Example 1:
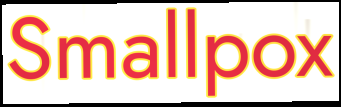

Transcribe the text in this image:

Smallpox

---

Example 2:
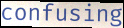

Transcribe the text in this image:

confusing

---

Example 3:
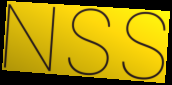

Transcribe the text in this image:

NSS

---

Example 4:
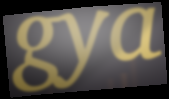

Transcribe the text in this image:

gya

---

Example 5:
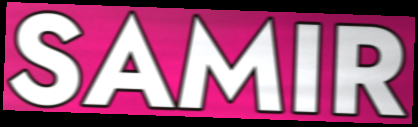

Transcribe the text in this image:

SAMIR